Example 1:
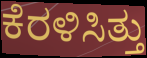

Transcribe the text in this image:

ಕೆರಳಿಸಿತ್ತು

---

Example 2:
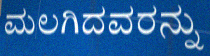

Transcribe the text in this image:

ಮಲಗಿದವರನ್ನು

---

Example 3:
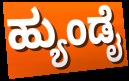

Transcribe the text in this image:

ಹ್ಯುಂಡೈ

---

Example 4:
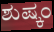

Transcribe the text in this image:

ಶುಷ್ಕಂ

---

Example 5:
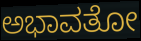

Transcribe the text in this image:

ಅಭಾವತೋ